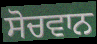
ਸੋਚਵਾਨ